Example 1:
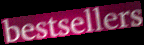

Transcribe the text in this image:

bestsellers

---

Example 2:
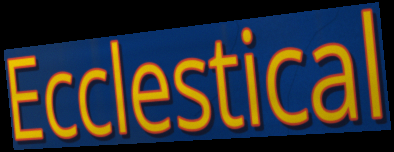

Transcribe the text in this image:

Ecclestical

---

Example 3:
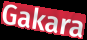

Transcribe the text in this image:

Gakara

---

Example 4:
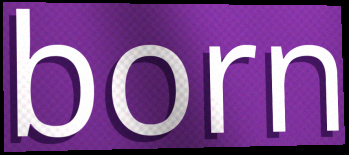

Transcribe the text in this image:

born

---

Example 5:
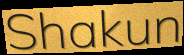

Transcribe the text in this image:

Shakun